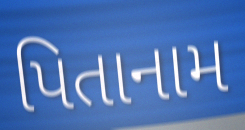
પિતાનામ